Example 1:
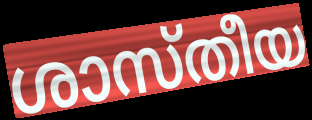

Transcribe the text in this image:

ശാസ്തീയ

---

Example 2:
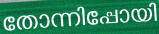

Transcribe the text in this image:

തോന്നിപ്പോയി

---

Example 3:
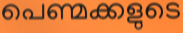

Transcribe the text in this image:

പെണ്മക്കളുടെ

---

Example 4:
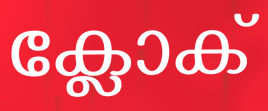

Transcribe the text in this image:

ക്ലോക്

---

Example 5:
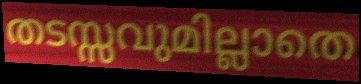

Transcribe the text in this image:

തടസ്സവുമില്ലാതെ